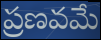
ప్రణవమే